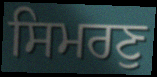
ਸਿਮਰਣੁ